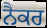
ਨੈਕਰ